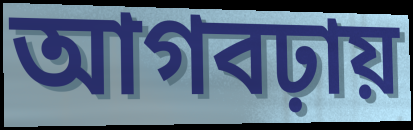
আগবঢ়ায়